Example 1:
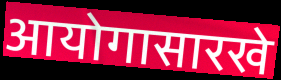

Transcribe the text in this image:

आयोगासारखे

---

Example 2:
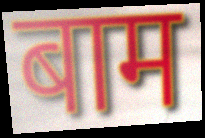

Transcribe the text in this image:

बाम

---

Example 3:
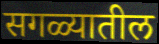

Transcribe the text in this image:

सगळ्यातील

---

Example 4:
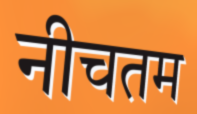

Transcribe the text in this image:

नीचतम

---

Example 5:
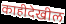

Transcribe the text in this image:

काहीदेखील